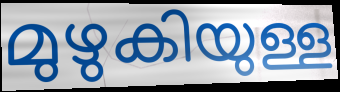
മുഴുകിയുള്ള